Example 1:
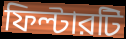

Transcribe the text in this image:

ফিল্টারটি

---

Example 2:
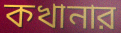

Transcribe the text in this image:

কখানার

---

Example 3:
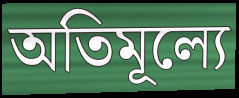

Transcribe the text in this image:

অতিমূল্যে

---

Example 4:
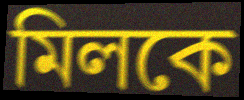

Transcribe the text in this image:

মিলকে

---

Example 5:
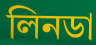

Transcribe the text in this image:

লিনডা